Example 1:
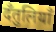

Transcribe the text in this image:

दँतुलियाँ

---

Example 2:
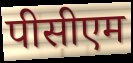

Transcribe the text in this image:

पीसीएम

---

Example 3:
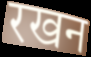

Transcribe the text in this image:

रखन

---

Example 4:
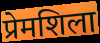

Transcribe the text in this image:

प्रेमशिला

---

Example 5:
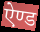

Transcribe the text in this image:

ऐण्ड